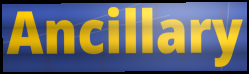
Ancillary